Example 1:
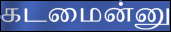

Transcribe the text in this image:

கடமைன்னு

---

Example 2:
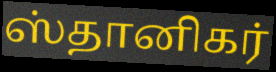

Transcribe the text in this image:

ஸ்தானிகர்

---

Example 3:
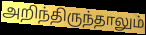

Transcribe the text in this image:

அறிந்திருந்தாலும்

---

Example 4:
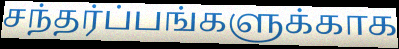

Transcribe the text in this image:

சந்தர்ப்பங்களுக்காக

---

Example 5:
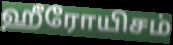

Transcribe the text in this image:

ஹீரோயிசம்